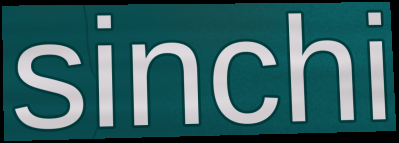
sinchi